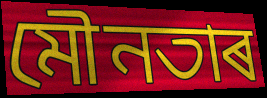
মৌনতাৰ